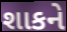
શાકને